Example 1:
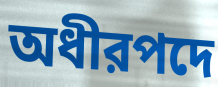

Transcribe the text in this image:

অধীরপদে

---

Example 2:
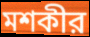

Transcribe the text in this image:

মশকীর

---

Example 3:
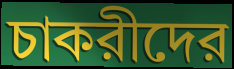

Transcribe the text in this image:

চাকরীদের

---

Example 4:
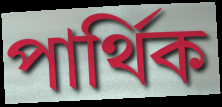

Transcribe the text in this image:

পার্থিক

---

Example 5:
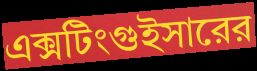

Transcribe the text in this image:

এক্সটিংগুইসারের